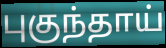
புகுந்தாய்